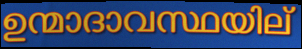
ഉന്മാദാവസ്ഥയില്